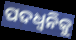
ପଦଧ୍ୱନିକୁ